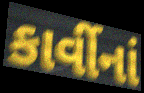
કાર્વીનાં